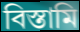
বিস্তামি